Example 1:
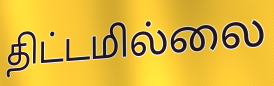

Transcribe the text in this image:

திட்டமில்லை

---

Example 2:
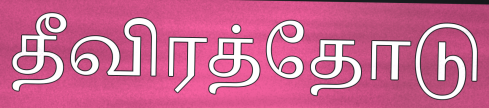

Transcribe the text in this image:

தீவிரத்தோடு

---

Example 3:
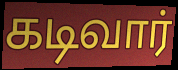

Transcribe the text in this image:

கடிவார்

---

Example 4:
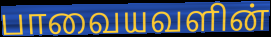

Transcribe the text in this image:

பாவையவளின்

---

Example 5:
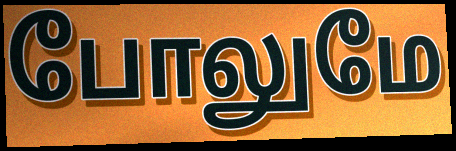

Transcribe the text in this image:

போலுமே